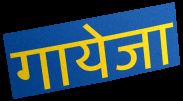
गायेजा